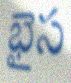
భైస